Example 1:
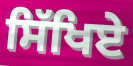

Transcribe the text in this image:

ਸਿੱਖਿਏ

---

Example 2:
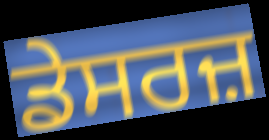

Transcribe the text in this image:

ਡੇਸਰਜ਼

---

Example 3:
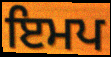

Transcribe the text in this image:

ਇਮਪ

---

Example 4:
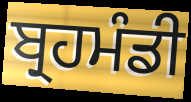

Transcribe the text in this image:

ਬ੍ਰਹਮੰਡੀ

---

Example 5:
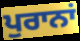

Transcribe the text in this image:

ਪੁਰਾਨਾਂ